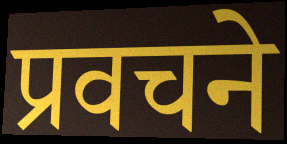
प्रवचने